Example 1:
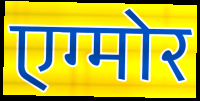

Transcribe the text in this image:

एग्मोर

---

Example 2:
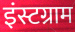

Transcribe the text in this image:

इंस्टग्राम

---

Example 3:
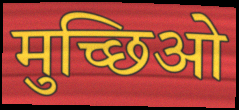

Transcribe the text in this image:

मुच्छिओ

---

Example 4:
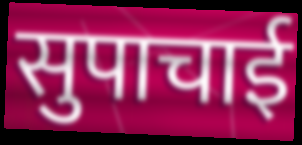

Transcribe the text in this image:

सुपाचाई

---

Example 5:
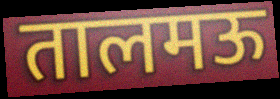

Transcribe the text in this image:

तालमऊ